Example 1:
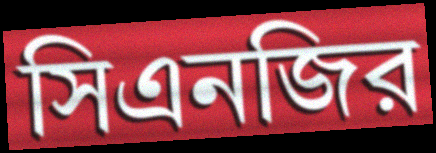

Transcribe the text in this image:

সিএনজির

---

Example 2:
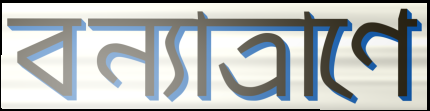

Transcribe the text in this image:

বন্যাত্রাণে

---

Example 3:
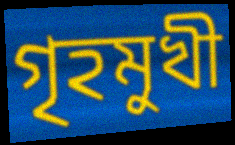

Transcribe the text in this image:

গৃহমুখী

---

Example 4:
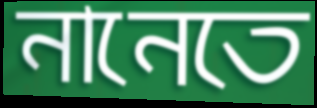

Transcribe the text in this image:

নানেতে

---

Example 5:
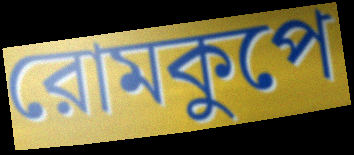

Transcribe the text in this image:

রোমকুপে